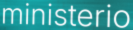
ministerio